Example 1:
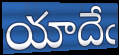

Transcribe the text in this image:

యాదేఁ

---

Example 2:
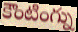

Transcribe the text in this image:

కౌంటింగ్ను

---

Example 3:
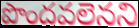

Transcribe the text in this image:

పొందవలెనని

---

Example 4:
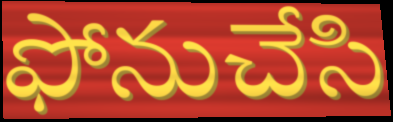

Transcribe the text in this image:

ఫోనుచేసి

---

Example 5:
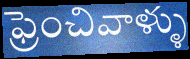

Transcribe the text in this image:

ఫ్రెంచివాళ్ళు